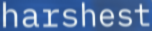
harshest